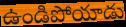
ఉండిపోయాడు